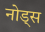
नोड्स